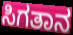
ಸಿಗತಾನ